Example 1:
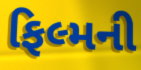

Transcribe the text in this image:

ફિલ્મની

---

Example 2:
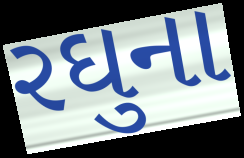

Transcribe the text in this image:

રઘુના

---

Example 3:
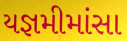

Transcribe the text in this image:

યજ્ઞમીમાંસા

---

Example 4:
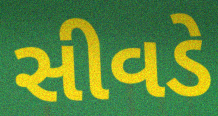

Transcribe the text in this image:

સીવડે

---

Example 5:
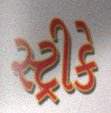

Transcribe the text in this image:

સ્ટ્રીકે